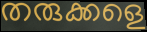
തരുക്കളെ